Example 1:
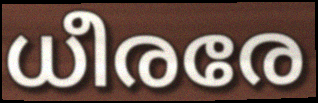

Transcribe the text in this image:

ധീരരേ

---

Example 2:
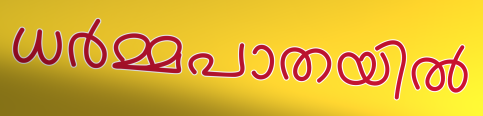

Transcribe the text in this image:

ധർമ്മപാതയിൽ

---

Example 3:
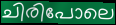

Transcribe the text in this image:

ചിരിപോലെ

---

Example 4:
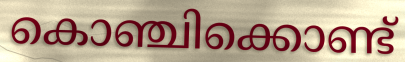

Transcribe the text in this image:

കൊഞ്ചിക്കൊണ്ട്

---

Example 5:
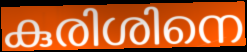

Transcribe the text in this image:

കുരിശിനെ